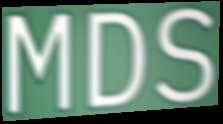
MDS